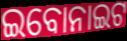
ଇବୋନାଇଟ